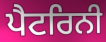
ਪੈਟਰਿਨੀ